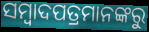
ସମ୍ୱାଦପତ୍ରମାନଙ୍କରୁ